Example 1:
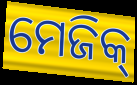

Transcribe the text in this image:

ମେଜିକ୍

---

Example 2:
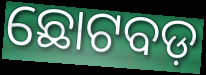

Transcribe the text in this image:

ଛୋଟବଡ଼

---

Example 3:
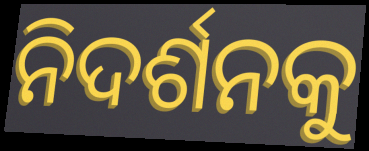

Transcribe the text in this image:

ନିଦର୍ଶନକୁ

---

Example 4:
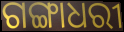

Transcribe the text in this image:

ଗଙ୍ଗାଧରୀ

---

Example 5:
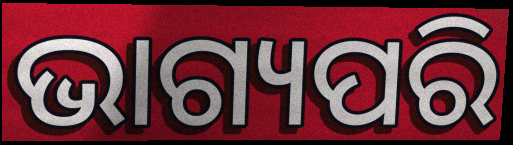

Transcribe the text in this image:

ଭାଗ୍ୟପରି